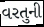
વરતુની